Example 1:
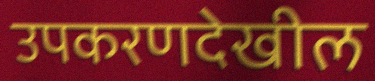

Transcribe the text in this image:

उपकरणदेखील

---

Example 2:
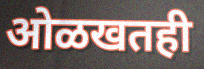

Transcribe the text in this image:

ओळखतही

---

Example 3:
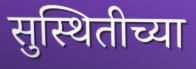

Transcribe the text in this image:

सुस्थितीच्या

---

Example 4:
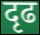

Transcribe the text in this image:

दृढ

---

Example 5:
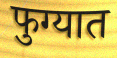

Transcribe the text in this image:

फुग्यात